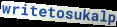
writetosukalp